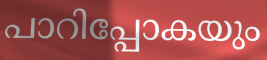
പാറിപ്പോകയും